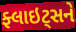
ફ્લાઇટ્સને